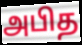
அபித